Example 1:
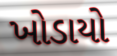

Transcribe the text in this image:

ખોડાયો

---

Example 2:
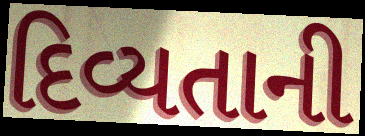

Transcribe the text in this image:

દિવ્યતાની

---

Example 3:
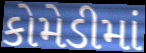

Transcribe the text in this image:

કોમેડીમાં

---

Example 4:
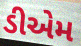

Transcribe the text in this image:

ડીએમ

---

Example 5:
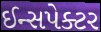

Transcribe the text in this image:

ઈન્સપેક્ટર